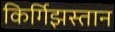
किर्गिझस्तान